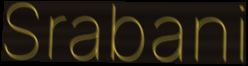
Srabani